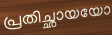
പ്രതിച്ഛായയോ